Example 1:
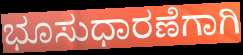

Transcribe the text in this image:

ಭೂಸುಧಾರಣೆಗಾಗಿ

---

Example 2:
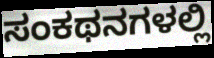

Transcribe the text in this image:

ಸಂಕಥನಗಳಲ್ಲಿ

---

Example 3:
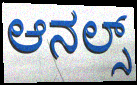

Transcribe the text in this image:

ಆನಲ್ಸ್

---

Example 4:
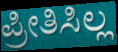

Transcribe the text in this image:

ಪ್ರೀತಿಸಿಲ್ಲ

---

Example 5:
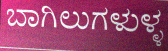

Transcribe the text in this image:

ಬಾಗಿಲುಗಳುಳ್ಳ